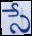
సే